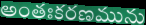
అంతఃకరణమును